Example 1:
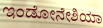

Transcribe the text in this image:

ಇಂಡೋನೇಶಿಯಾ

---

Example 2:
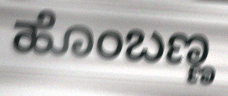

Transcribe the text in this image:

ಹೊಂಬಣ್ಣ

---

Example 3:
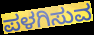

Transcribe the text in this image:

ಪಳಗಿಸುವ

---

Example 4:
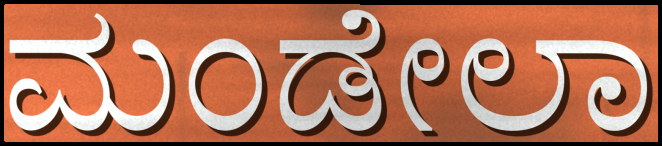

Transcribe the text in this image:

ಮಂಡೇಲಾ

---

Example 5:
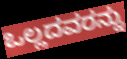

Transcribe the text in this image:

ಒಲ್ಲದವರನ್ನು